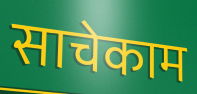
साचेकाम